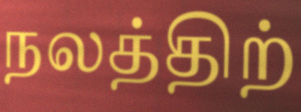
நலத்திற்